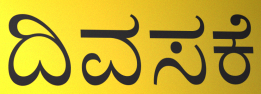
ದಿವಸಕೆ